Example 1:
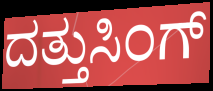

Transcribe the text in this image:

ದತ್ತುಸಿಂಗ್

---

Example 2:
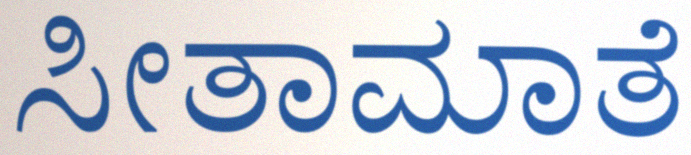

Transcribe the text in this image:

ಸೀತಾಮಾತೆ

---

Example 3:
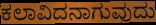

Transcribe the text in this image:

ಕಲಾವಿದನಾಗುವುದು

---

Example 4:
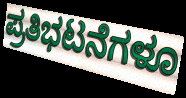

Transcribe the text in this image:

ಪ್ರತಿಭಟನೆಗಳೂ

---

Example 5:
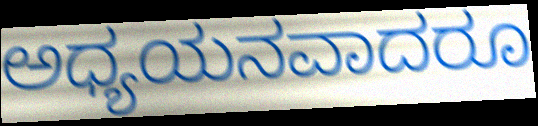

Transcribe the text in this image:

ಅಧ್ಯಯನವಾದರೂ